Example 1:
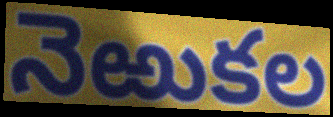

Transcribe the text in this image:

నెఱుకల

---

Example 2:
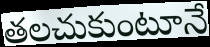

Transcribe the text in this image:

తలచుకుంటూనే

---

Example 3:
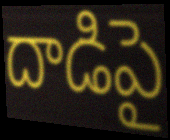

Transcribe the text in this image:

దాడిపై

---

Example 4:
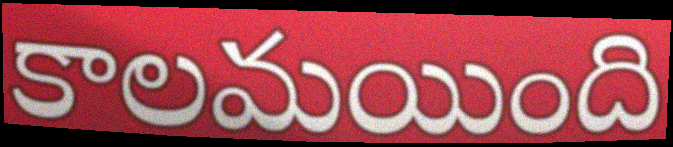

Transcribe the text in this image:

కాలమయింది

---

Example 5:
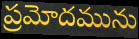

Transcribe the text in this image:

ప్రమోదమును